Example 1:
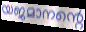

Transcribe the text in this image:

യജമാനന്റെ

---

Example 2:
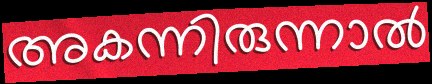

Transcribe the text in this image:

അകന്നിരുന്നാൽ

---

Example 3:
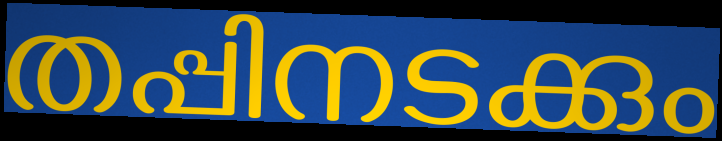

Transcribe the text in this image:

തപ്പിനടക്കും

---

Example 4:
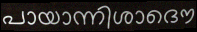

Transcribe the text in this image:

പായാന്നിശാദൌ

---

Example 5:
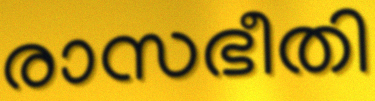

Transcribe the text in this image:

രാസഭീതി